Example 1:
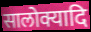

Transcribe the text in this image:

सालोक्यादि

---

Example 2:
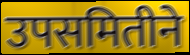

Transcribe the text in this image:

उपसमितीने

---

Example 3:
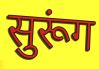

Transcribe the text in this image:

सुरूंग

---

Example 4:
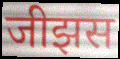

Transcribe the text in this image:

जीझस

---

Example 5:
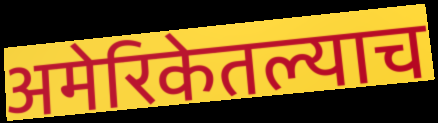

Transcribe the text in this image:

अमेरिकेतल्याच